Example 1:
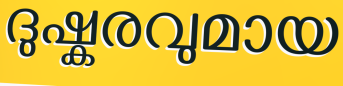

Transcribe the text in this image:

ദുഷ്കരവുമായ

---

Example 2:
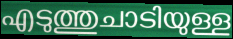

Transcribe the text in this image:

എടുത്തുചാടിയുള്ള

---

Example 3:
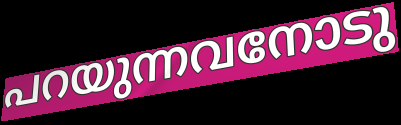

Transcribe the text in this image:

പറയുന്നവനോടു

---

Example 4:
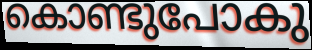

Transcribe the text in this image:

കൊണ്ടുപോകു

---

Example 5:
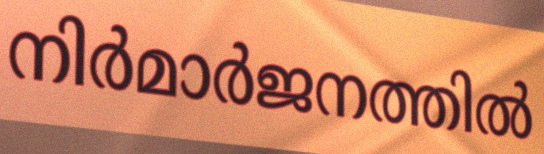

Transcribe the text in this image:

നിർമാർജനത്തിൽ